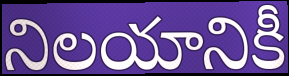
నిలయానికీ